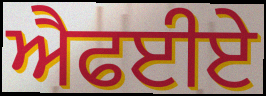
ਐਫਈਏ